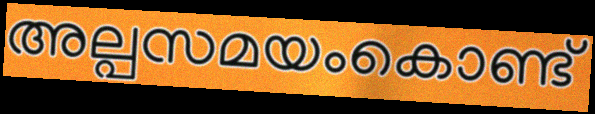
അല്പസമയംകൊണ്ട്